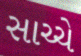
સાચ્ચે